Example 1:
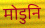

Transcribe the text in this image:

मोडुनि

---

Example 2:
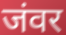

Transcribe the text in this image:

जंवर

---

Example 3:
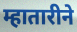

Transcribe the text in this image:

म्हातारीने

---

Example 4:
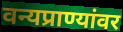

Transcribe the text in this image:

वन्यप्राण्यांवर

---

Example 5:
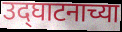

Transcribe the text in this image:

उद्घाटनाच्या